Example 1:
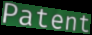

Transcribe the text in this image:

Patent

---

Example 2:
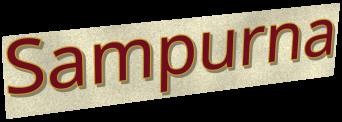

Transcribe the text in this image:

Sampurna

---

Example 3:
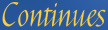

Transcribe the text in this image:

Continues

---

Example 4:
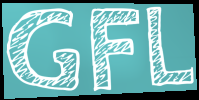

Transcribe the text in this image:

GFL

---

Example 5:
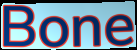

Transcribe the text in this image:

Bone